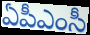
ఏపీఎంసీ